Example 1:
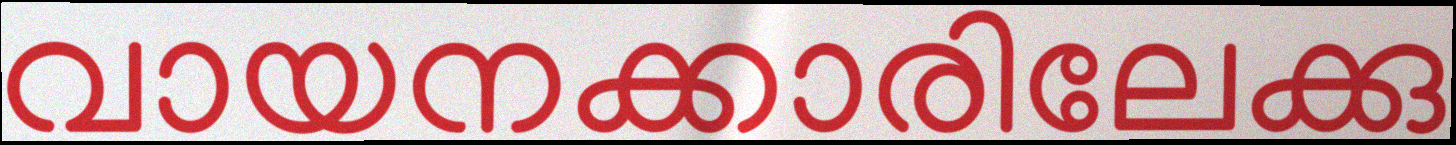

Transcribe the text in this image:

വായനക്കാരിലേക്കു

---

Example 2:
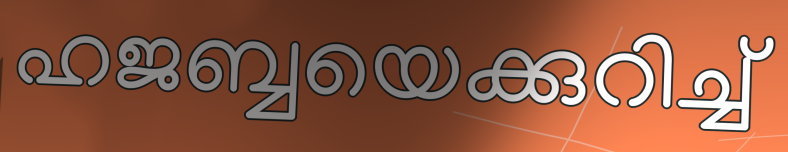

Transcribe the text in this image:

ഹജബ്ബയെക്കുറിച്ച്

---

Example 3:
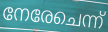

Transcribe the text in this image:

നേരേചെന്ന്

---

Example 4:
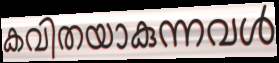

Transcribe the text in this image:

കവിതയാകുന്നവൾ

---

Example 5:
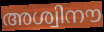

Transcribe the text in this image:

അശ്വിനൗ